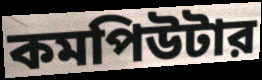
কমপিউটার